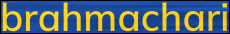
brahmachari